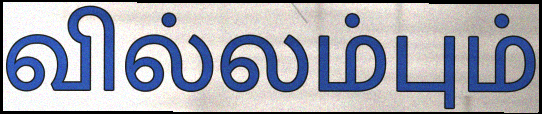
வில்லம்பும்